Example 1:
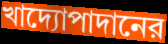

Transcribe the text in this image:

খাদ্যোপাদানের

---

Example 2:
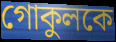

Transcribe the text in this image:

গোকুলকে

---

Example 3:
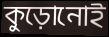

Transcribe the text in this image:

কুড়োনোই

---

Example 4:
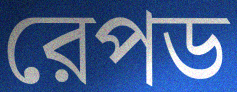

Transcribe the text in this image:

রেপড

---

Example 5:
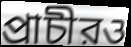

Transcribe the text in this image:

প্রাচীরও